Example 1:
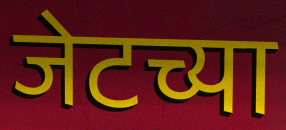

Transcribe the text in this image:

जेटच्या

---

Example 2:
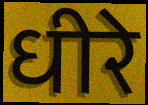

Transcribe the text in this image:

धीरे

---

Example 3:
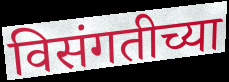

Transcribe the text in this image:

विसंगतीच्या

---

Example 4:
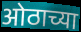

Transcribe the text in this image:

ओठाच्या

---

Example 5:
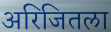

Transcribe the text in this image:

अरिजितला